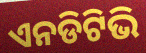
ଏନଡିଟିଭି